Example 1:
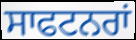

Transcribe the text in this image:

ਸਾਫਟਨਰਾਂ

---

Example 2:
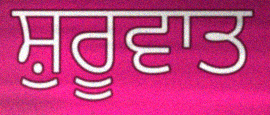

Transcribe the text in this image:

ਸ਼ੁਰੂਵਾਤ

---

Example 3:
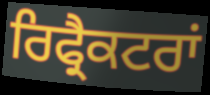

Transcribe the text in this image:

ਰਿਫ੍ਰੈਕਟਰਾਂ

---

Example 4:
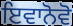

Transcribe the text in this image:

ਇਵਾਨੋਵੋ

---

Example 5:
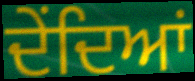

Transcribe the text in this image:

ਦੇਂਦਿਆਂ